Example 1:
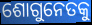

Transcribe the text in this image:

ଶୋଗୁନେତକୁ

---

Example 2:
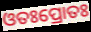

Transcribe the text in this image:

ଓତଃପ୍ରୋତଃ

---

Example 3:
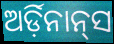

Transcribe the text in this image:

ଅର୍ଡ଼ିନାନ୍‌ସ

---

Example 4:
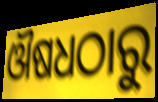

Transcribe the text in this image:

ଔଷଧଠାରୁ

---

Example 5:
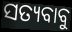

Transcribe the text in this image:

ସତ୍ୟବାବୁ